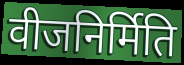
वीजनिर्मिति